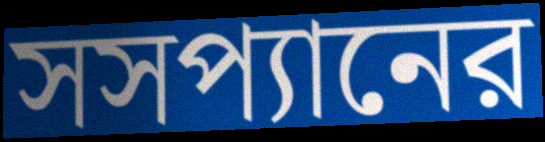
সসপ্যানের